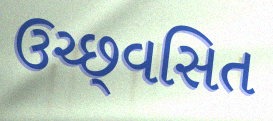
ઉચ્છ્‌વસિત